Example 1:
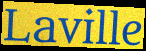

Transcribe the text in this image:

Laville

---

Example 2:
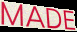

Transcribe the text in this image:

MADE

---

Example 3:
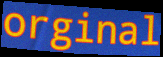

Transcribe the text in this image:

orginal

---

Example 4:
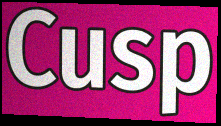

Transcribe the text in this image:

Cusp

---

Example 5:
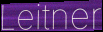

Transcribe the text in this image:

Leitner